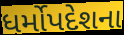
ધર્મોપદેશના